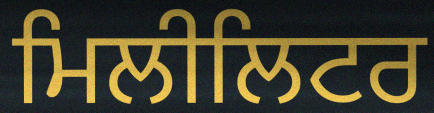
ਮਿਲੀਲਿਟਰ